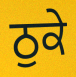
ਠੁਕੇ